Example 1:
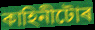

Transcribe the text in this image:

কাহিনীটোৰ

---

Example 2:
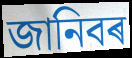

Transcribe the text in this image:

জানিবৰ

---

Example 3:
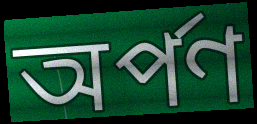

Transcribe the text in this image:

অৰ্পণ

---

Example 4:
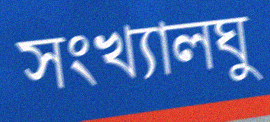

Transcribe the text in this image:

সংখ্যালঘু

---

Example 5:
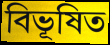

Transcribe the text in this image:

বিভূষিত